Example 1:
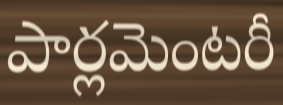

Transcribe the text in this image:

పార్లమెంటరీ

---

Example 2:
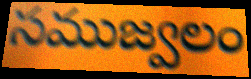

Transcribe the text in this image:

సముజ్వలం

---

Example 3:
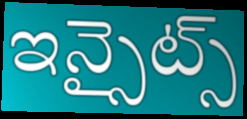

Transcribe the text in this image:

ఇన్సైట్స్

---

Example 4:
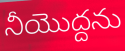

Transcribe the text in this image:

నీయొద్దను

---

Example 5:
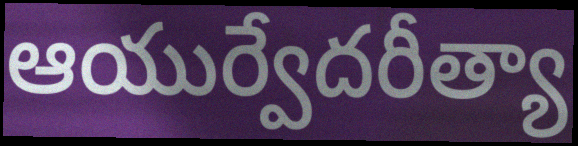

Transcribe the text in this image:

ఆయుర్వేదరీత్యా